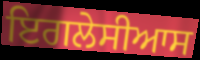
ਇਗਲੇਸੀਆਸ